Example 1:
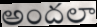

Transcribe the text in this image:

అందలా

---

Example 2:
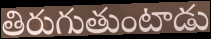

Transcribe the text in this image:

తిరుగుతుంటాడు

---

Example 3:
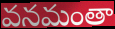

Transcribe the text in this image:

వనమంతా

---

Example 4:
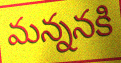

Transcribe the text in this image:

మన్ననకి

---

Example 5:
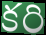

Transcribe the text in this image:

కరి